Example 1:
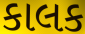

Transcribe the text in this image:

કાલક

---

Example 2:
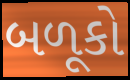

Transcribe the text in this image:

બળૂકો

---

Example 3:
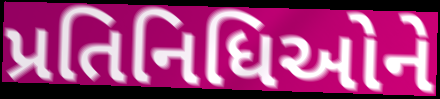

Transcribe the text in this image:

પ્રતિનિધિઓને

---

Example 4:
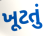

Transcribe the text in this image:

ખૂટતું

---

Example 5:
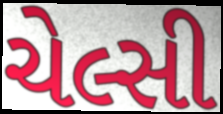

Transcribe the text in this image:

ચેલ્સી